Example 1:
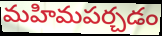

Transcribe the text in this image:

మహిమపర్చడం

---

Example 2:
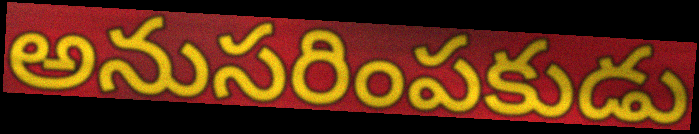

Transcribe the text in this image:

అనుసరింపకుడు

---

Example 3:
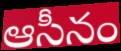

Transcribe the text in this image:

ఆసీనం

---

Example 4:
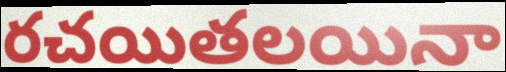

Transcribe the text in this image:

రచయితలయినా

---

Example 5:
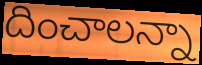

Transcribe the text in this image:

దించాలన్నా